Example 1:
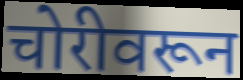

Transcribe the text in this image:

चोरीवरून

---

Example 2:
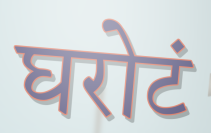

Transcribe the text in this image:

घरोटं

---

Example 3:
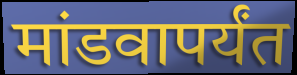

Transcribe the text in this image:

मांडवापर्यंत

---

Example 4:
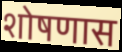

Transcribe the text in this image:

शोषणास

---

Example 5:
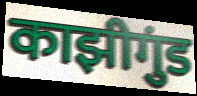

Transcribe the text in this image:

काझीगुंड